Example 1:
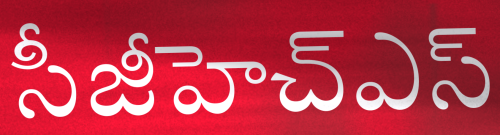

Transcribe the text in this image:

సీజీహెచ్ఎస్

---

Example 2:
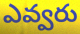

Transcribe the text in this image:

ఎవ్వరు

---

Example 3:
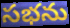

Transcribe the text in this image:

సభను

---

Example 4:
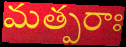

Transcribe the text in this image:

మత్పరాః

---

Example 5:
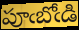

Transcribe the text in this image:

పూఁబోఁడి